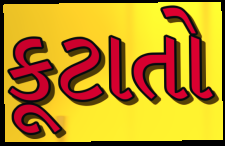
કૂટાતો